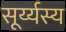
सूर्य्यस्य